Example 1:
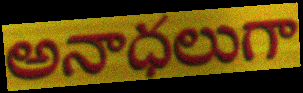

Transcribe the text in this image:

అనాధలుగా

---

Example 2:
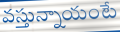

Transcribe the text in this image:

వస్తున్నాయంటే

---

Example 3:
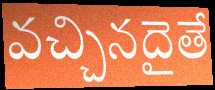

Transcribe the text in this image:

వచ్చినదైతే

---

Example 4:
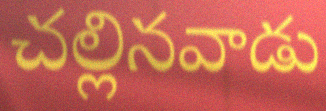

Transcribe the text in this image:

చల్లినవాడు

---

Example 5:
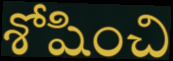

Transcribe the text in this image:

శోషించి